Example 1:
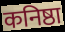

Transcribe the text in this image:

कनिष्ठा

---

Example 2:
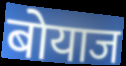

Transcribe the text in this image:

बोयाज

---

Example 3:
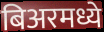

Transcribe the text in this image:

बिअरमध्ये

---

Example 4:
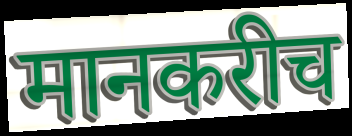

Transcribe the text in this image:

मानकरीच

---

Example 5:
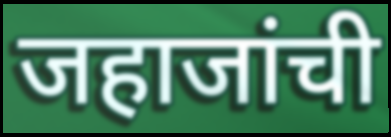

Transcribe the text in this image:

जहाजांची